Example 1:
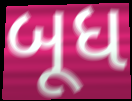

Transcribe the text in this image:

બૂધ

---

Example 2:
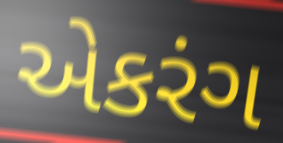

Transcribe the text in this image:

એકરંગ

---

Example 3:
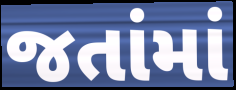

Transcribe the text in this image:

જતાંમાં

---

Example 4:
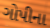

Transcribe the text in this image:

ગોપીના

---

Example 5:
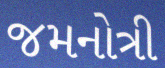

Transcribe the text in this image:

જમનોત્રી